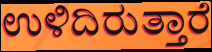
ಉಳಿದಿರುತ್ತಾರೆ